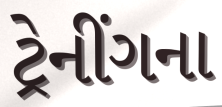
ટ્રેનીંગના